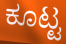
ಕೂಟ್ಟ